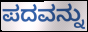
ಪದವನ್ನು